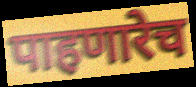
पाहणारेच